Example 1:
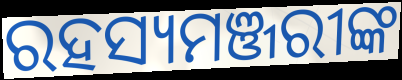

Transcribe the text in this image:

ରହସ୍ୟମଞ୍ଜରୀଙ୍କ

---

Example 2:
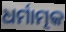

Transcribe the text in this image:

ଧର୍ମାତ୍ମକ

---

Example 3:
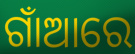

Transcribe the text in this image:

ଗାଁଆରେ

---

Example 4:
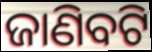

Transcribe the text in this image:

ଜାଣିବଟି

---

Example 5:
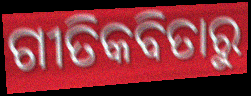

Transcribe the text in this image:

ଗୀତିକବିତାରୁ